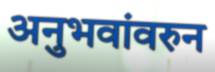
अनुभवांवरुन